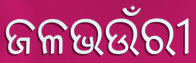
ଜଳଭଉଁରୀ